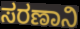
ಸರಣಾನಿ